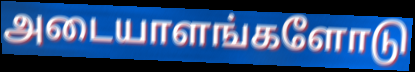
அடையாளங்களோடு